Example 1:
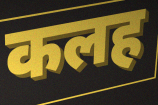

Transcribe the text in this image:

कलह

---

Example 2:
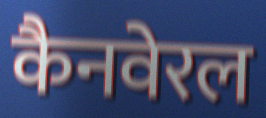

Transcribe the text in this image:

कैनवेरल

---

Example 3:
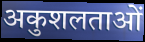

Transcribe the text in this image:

अकुशलताओं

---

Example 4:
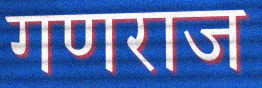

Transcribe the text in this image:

गणराज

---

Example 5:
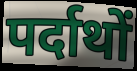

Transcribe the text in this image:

पर्दाथों